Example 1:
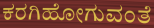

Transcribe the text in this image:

ಕರಗಿಹೋಗುವಂತೆ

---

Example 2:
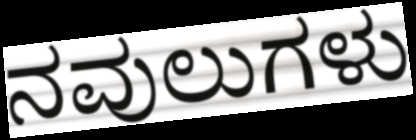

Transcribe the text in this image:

ನವುಲುಗಳು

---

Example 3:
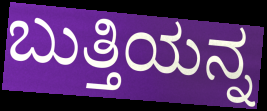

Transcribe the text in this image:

ಬುತ್ತಿಯನ್ನ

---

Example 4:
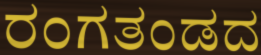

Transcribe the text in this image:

ರಂಗತಂಡದ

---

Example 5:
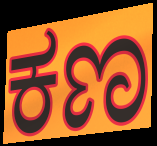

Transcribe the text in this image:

ಕಣ